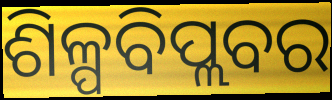
ଶିଳ୍ପବିପ୍ଲବର